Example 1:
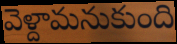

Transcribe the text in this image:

వెళ్దామనుకుంది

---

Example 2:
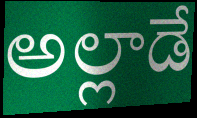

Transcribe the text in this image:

అల్లాడే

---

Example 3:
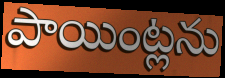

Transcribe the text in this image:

పాయింట్లను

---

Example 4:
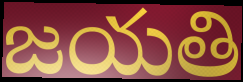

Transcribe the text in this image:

జయతి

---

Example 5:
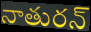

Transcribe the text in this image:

నాతురన్